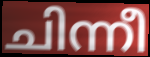
ചിന്നീ